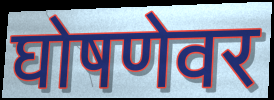
घोषणेवर